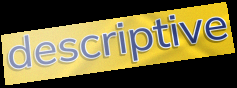
descriptive